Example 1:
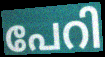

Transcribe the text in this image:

പേറി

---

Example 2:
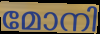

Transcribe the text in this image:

മോനി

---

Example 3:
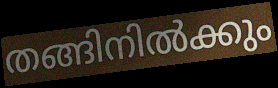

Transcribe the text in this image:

തങ്ങിനിൽക്കും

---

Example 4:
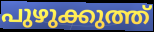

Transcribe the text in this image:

പുഴുക്കുത്ത്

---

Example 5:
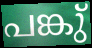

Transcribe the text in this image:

പങ്കു്